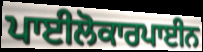
ਪਾਈਲੋਕਾਰਪਾਈਨ